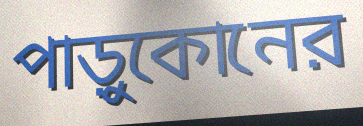
পাড়ুকোনের